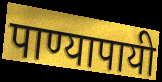
पाण्यापायी